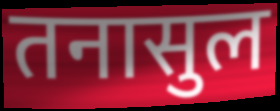
तनासुल